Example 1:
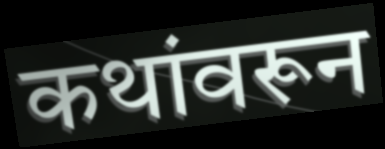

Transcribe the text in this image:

कथांवरून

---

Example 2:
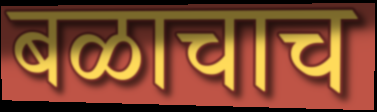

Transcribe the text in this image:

बळाचाच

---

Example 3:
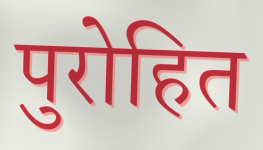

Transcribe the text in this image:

पुरोहित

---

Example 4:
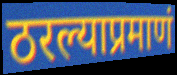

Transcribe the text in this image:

ठरल्याप्रमाणं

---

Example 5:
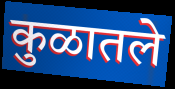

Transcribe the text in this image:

कुळातले